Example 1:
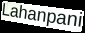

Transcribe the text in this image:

Lahanpani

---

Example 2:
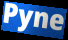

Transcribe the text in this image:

Pyne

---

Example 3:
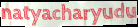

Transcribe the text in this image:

natyacharyudu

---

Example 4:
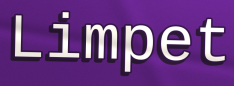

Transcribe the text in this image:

Limpet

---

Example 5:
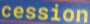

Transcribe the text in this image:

cession